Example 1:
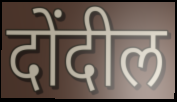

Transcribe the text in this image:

दोंदील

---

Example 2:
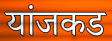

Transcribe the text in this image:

यांजकड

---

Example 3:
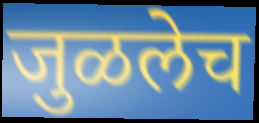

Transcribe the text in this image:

जुळलेच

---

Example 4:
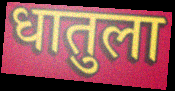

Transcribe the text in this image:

धातुला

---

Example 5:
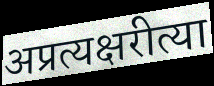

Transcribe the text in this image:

अप्रत्यक्षरीत्या